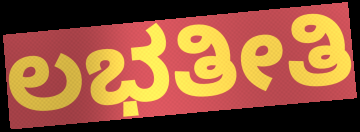
ಲಭತೀತಿ